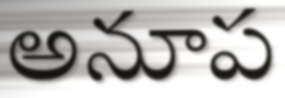
అనూప